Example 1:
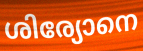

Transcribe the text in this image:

ശിര്യോനെ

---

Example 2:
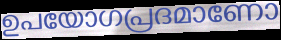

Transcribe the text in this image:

ഉപയോഗപ്രദമാണോ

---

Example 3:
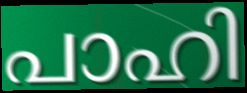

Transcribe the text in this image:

പാഹി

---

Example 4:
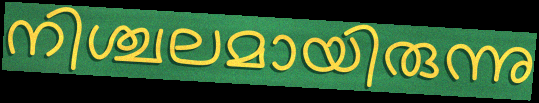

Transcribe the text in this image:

നിശ്ചലമായിരുന്നു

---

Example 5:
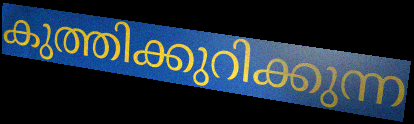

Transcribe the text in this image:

കുത്തിക്കുറിക്കുന്ന